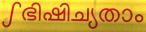
ഽഭിഷിച്യതാം